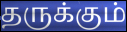
தருக்கும்